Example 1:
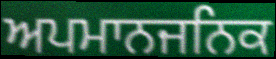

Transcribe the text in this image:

ਅਪਮਾਨਜਨਿਕ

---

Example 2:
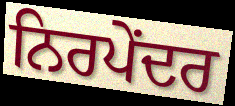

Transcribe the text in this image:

ਨਿਰਪੇਂਦਰ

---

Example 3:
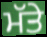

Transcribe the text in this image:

ਮੱਤੇ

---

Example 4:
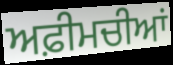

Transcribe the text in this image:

ਅਫ਼ੀਮਚੀਆਂ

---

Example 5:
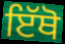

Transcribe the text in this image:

ਇੱਥੋ